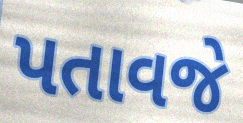
પતાવજે